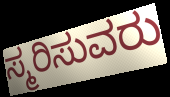
ಸ್ಮರಿಸುವರು